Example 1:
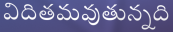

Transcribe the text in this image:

విదితమవుతున్నది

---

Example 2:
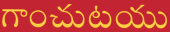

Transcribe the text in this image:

గాంచుటయు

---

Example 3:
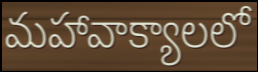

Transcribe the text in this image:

మహావాక్యాలలో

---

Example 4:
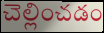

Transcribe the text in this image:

చెల్లించడం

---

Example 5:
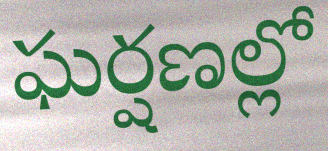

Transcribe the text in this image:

ఘర్షణల్లో